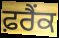
ਫ਼ਰੈਂਕ